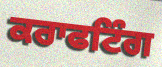
ਕਰਾਫਟਿੰਗ